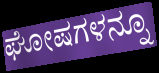
ಘೋಷಗಳನ್ನೂ